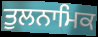
ਤੁਲਨਾਮਿਕ